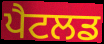
ਪੈਟਲਡ